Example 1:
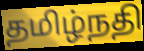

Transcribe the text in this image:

தமிழ்நதி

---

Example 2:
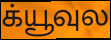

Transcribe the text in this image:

க்யூவுல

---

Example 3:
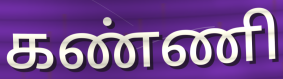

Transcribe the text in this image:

கண்ணி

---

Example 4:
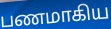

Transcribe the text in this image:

பணமாகிய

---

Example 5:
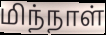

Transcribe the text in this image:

மிந்நாள்